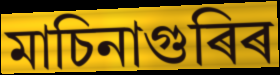
মাচিনাগুৰিৰ